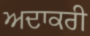
ਅਦਾਕਰੀ